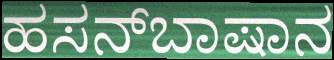
ಹಸನ್‌ಬಾಷಾನ